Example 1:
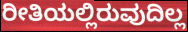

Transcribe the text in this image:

ರೀತಿಯಲ್ಲಿರುವುದಿಲ್ಲ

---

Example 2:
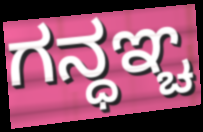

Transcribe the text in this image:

ಗನ್ಧಞ್ಚ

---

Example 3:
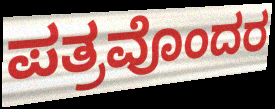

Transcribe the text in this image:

ಪತ್ರವೊಂದರ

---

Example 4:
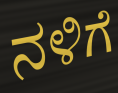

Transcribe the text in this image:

ನಳಿಗೆ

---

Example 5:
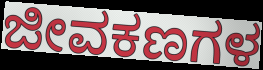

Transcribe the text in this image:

ಜೀವಕಣಗಳ